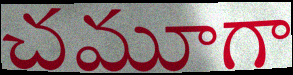
చమూగా